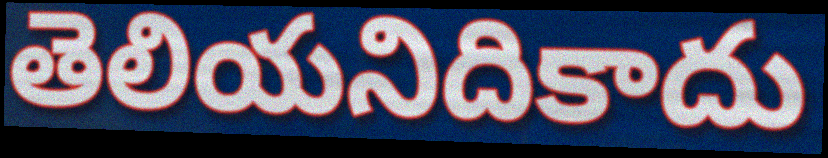
తెలియనిదికాదు